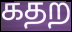
கதற